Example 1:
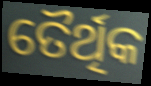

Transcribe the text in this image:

ତୈର୍ଥିକ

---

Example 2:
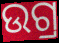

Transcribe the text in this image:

ଉଗ୍ର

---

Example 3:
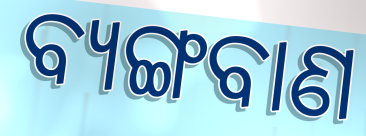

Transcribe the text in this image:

ବ୍ୟଙ୍ଗବାଣ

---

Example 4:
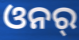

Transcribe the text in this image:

ଓନର୍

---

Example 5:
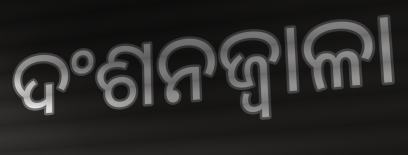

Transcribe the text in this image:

ଦଂଶନଜ୍ୱାଳା